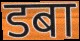
डबा